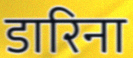
डारिना